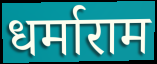
धर्माराम